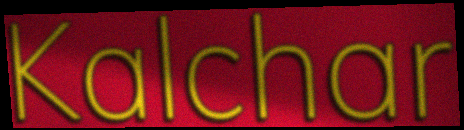
Kalchar